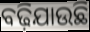
ବଢ଼ିଯାଉଛି